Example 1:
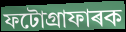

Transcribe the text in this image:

ফটোগ্ৰাফাৰক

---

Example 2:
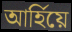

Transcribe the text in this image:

আৰ্হিয়ে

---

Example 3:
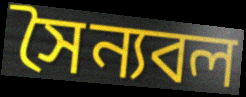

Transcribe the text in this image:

সৈন্যবল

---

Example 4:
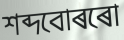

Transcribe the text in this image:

শব্দবোৰৰো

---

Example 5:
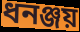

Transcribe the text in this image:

ধনঞ্জয়